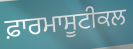
ਫ਼ਾਰਮਾਸੂਟੀਕਲ